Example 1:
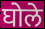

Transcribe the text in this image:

घोले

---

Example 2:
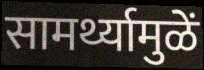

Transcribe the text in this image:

सामर्थ्यामुळें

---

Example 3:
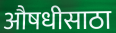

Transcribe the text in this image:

औषधीसाठा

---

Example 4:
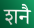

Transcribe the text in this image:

शनै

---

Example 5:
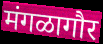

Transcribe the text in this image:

मंगळागौर